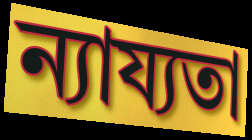
ন্যায্যতা